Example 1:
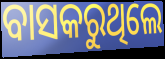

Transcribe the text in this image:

ବାସକରୁଥିଲେ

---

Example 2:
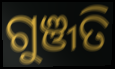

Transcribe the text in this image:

ଗୁଞ୍ଜତି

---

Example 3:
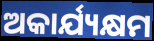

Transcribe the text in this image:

ଅକାର୍ଯ୍ୟକ୍ଷମ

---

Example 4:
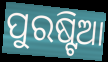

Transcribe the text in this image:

ପୁରଷ୍ଟିଆ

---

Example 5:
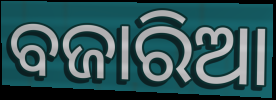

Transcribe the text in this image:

ବଜାରିଆ